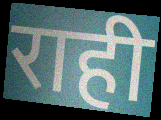
राही